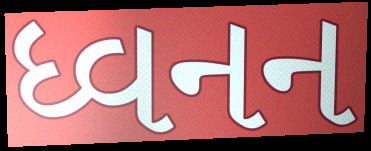
ધ્વનન